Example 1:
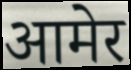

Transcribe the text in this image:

आमेर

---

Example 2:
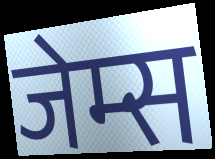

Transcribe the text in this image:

जेम्स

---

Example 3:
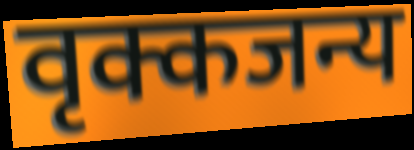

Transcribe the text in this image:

वृक्कजन्य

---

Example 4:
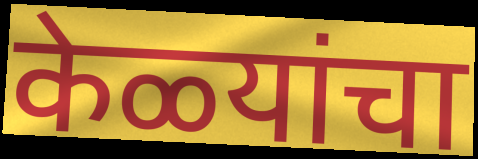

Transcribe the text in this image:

केळ्यांचा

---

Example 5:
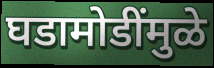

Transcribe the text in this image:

घडामोडींमुळे